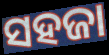
ସହଜା